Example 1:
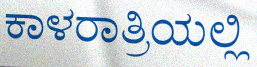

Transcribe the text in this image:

ಕಾಳರಾತ್ರಿಯಲ್ಲಿ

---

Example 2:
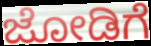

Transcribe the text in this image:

ಜೋಡಿಗೆ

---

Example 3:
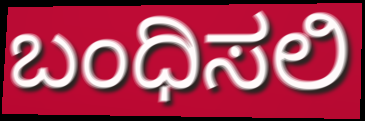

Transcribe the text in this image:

ಬಂಧಿಸಲಿ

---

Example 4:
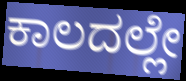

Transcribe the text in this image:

ಕಾಲದಲ್ಲೇ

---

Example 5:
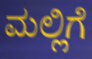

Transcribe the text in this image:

ಮಲ್ಲಿಗೆ